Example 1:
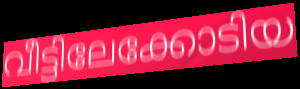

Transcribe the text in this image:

വീട്ടിലേക്കോടിയ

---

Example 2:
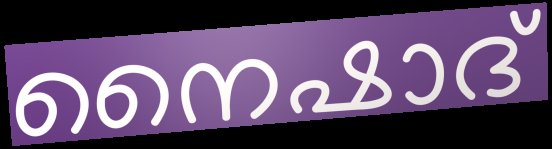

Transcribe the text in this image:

നൈഷാദ്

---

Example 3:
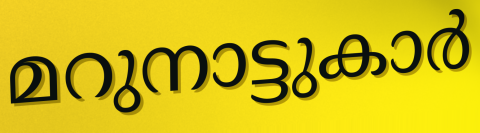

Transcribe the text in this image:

മറുനാട്ടുകാർ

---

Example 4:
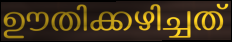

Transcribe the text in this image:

ഊതിക്കഴിച്ചത്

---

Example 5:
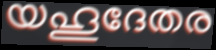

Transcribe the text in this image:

യഹൂദേതര